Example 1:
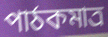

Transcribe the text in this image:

পাঠকমাত্র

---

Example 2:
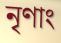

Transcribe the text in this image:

নৃণাং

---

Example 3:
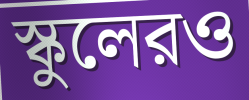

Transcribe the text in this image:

স্কুলেরও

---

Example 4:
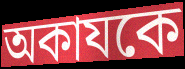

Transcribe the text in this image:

অকাযকে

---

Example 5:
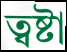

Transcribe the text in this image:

ত্বষ্টা